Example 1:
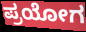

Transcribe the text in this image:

ಪ್ರಯೋಗ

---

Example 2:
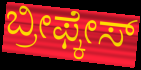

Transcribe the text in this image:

ಬ್ರೀಫ್ಕೇಸ್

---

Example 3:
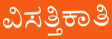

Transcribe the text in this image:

ವಿಸತ್ತಿಕಾತಿ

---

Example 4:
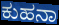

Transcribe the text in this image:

ಕುಹನಾ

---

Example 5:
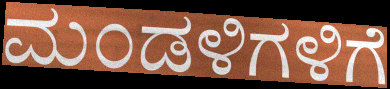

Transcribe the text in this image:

ಮಂಡಳಿಗಳಿಗೆ